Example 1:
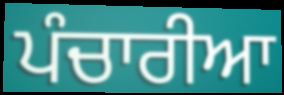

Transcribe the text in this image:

ਪੰਚਾਰੀਆ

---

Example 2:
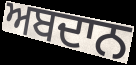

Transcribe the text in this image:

ਅਬਦਾਨ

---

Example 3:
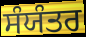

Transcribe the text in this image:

ਸੰਯੰਤਰ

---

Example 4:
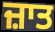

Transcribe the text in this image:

ਜ਼ਾਤ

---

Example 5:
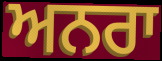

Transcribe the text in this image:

ਅਨਰਾ